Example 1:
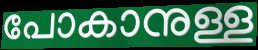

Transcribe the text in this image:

പോകാനുള്ള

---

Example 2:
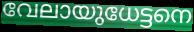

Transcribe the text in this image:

വേലായുധേട്ടനെ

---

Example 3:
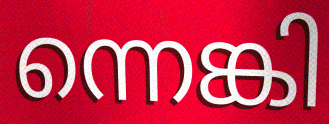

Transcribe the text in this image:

ന്നെങ്കി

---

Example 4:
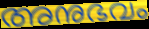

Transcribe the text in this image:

അനുഭവം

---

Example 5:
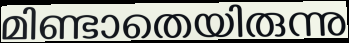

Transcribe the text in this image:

മിണ്ടാതെയിരുന്നു